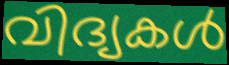
വിദ്യകൾ